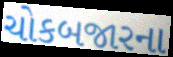
ચોકબજારના